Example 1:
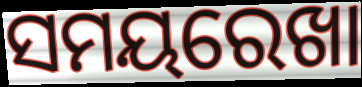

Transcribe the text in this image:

ସମୟରେଖା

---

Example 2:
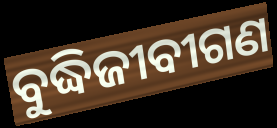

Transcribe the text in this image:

ବୁଦ୍ଧିଜୀବୀଗଣ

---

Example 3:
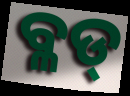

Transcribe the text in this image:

ବ୍ଳଡ୍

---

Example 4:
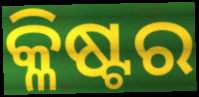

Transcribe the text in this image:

କ୍ଳିଷ୍ଟର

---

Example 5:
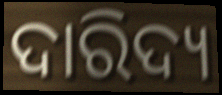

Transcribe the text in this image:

ଦାରିଦ୍ୟ